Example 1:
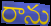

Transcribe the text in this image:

రాను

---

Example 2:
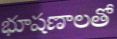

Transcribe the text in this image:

భూషణాలతో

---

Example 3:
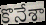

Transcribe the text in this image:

కొనేశా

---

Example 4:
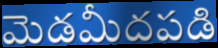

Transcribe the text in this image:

మెడమీదపడి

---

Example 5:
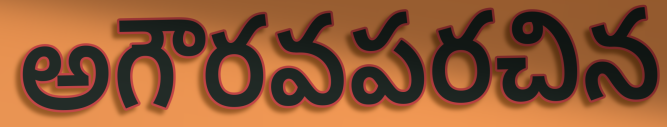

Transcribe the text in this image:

అగౌరవపరచిన